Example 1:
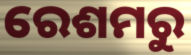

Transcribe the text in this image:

ରେଶମରୁ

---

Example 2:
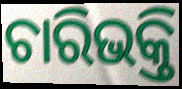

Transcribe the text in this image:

ଚାରିଭକ୍ତି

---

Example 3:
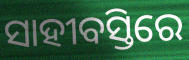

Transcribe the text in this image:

ସାହୀବସ୍ତିରେ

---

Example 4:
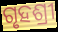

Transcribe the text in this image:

ଗୃହଶ୍ରୀ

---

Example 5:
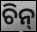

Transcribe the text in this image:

ଚିନ୍